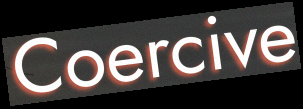
Coercive